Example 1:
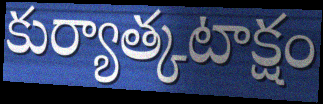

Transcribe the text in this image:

కుర్యాత్కటాక్షం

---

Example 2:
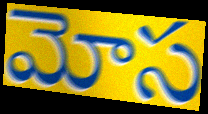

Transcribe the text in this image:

మోస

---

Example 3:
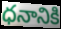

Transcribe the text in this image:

ధనానికి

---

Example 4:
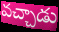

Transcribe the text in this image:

వచ్చాడు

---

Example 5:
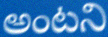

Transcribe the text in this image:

అంటని